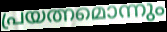
പ്രയത്നമൊന്നും